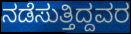
ನಡೆಸುತ್ತಿದ್ದವರ